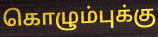
கொழும்புக்கு